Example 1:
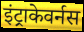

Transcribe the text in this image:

इंट्राकेवर्नस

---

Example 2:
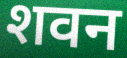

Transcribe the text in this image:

शवन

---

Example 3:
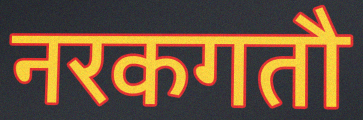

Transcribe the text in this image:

नरकगतौ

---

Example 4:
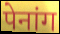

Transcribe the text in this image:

पेनांग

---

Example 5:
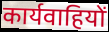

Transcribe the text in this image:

कार्यवाहियों